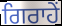
ਗਿਰਾਹੇਂ